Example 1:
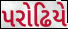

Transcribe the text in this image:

પરોઢિયે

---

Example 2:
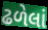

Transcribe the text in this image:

ઢળેલાં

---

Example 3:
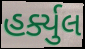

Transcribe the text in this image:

હર્ક્યુલ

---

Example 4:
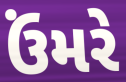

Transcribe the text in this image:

ઉંમરે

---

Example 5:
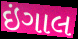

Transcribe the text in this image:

ઇંગાલ